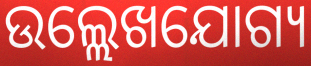
ଉଲ୍ଲେଖଯୋଗ୍ୟ